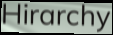
Hirarchy